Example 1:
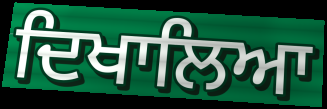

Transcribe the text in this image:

ਦਿਖਾਲਿਆ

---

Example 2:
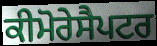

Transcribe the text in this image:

ਕੀਮੋਰੇਸੈਪਟਰ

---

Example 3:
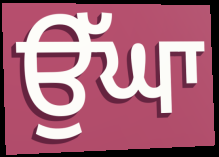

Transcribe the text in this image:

ਉੱਘਾ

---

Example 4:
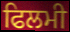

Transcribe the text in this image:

ਫਿਲਮੀ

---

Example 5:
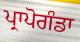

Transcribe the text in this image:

ਪ੍ਰਾਪੋਗੰਡਾ